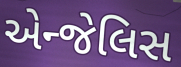
એન્જેલિસ